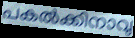
പകൽക്കിനാവു